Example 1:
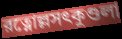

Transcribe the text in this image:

রত্নোল্লসৎকুণ্ডলা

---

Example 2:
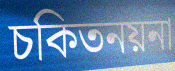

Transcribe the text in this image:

চকিতনয়না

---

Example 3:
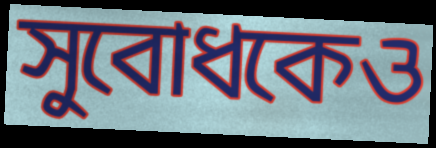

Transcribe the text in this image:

সুবোধকেও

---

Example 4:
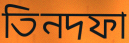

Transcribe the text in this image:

তিনদফা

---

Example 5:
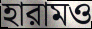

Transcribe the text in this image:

হারামও